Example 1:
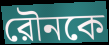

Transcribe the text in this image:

রৌনকে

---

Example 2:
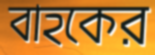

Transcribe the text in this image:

বাহকের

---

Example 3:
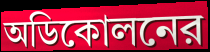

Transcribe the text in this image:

অডিকোলনের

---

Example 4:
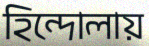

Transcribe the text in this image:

হিন্দোলায়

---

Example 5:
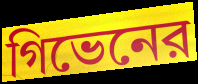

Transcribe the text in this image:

গিভেনের